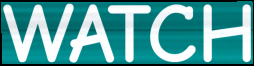
WATCH